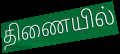
திணையில்